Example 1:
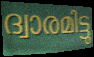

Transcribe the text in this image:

ദ്വാരമിട്ടു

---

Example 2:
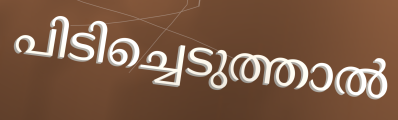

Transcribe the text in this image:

പിടിച്ചെടുത്താൽ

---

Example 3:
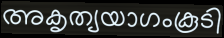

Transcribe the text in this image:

അകൃത്യയാഗംകൂടി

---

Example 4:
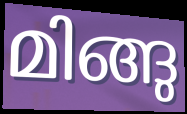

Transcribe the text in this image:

മിങ്ങു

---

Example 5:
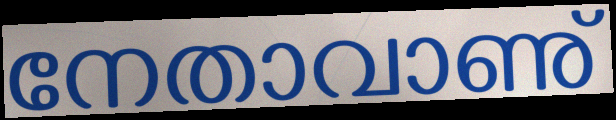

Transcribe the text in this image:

നേതാവാണു്